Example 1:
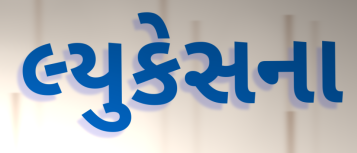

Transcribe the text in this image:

લ્યુકેસના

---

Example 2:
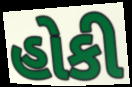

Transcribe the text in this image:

હોકી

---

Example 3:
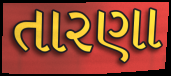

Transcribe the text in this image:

તારણા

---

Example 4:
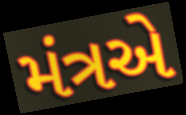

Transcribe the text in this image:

મંત્રએ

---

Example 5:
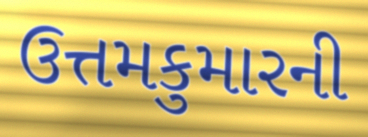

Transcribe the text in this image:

ઉત્તમકુમારની